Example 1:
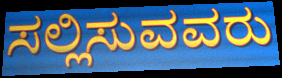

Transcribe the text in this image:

ಸಲ್ಲಿಸುವವರು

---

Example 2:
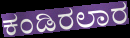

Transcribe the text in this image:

ಕಂಡಿರಲಾರ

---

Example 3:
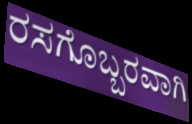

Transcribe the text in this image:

ರಸಗೊಬ್ಬರವಾಗಿ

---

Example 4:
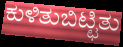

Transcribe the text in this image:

ಕುಳಿತುಬಿಟ್ಟಿತು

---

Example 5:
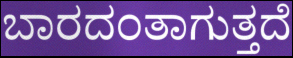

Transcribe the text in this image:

ಬಾರದಂತಾಗುತ್ತದೆ